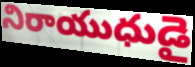
నిరాయుధుడై